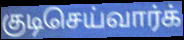
குடிசெய்வார்க்